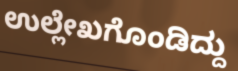
ಉಲ್ಲೇಖಗೊಂಡಿದ್ದು